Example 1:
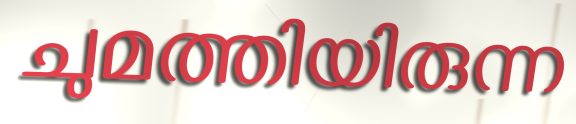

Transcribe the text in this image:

ചുമത്തിയിരുന്ന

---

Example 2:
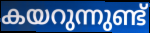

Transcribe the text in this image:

കയറുന്നുണ്ട്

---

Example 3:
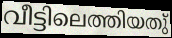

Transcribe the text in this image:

വീട്ടിലെത്തിയതു്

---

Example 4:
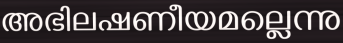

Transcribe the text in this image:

അഭിലഷണീയമല്ലെന്നു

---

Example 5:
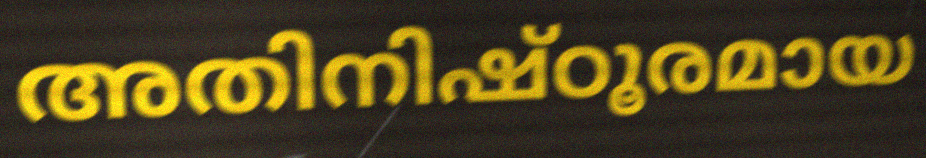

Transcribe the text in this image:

അതിനിഷ്ഠൂരമായ